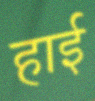
हाई